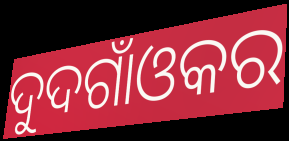
ଦୁଦଗାଁଓକର